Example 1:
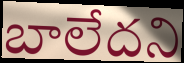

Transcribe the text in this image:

బాలేదని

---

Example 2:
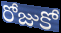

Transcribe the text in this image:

రోజుకో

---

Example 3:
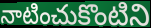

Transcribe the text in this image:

నాటించుకొంటిని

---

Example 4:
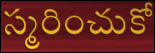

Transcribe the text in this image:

స్మరించుకో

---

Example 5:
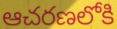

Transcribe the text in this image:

ఆచరణలోకి